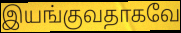
இயங்குவதாகவே